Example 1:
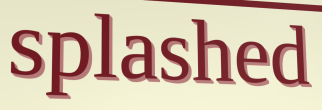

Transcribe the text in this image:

splashed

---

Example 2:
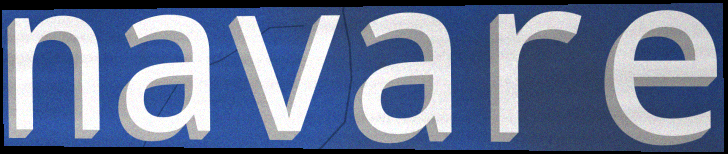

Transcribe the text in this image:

navare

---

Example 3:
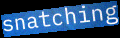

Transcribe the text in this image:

snatching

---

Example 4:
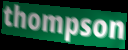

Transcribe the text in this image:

thompson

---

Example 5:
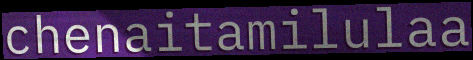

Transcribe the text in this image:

chenaitamilulaa